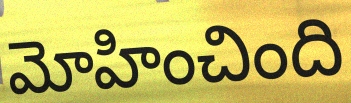
మోహించింది